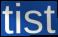
tist